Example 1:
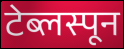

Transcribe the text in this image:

टेब्लस्पून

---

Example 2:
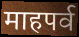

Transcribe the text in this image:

माहपर्व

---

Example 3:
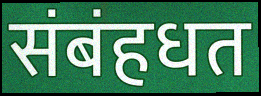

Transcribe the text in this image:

संबंहधत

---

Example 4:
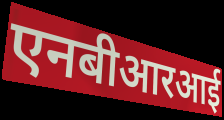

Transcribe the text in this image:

एनबीआरआई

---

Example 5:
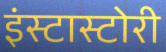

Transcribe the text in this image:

इंस्टास्टोरी